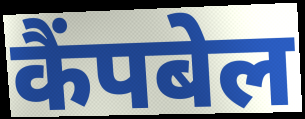
कैंपबेल